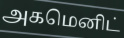
அகமெனிட்